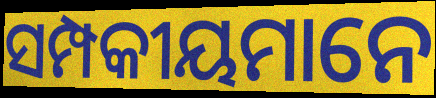
ସମ୍ପକୀୟମାନେ